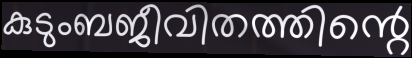
കുടുംബജീവിതത്തിന്റെ